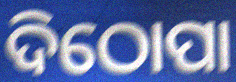
ଦିଠୋପା